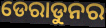
ଡେରାଡୁନର